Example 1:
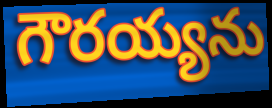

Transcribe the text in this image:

గౌరయ్యను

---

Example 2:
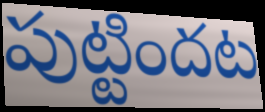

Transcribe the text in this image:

పుట్టిందట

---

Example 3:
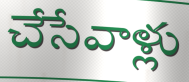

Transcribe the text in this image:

చేసేవాళ్లు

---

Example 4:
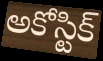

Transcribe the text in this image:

అకోస్టిక్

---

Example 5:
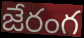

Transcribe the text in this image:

జేరంగ